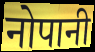
नोपानी